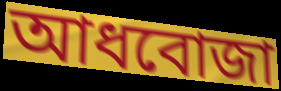
আধবোজা